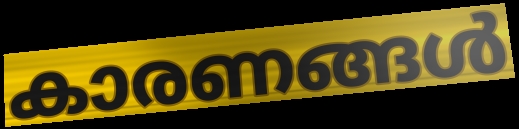
കാരണങ്ങൾ